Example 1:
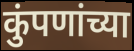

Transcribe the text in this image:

कुंपणांच्या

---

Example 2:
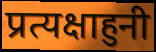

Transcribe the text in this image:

प्रत्यक्षाहुनी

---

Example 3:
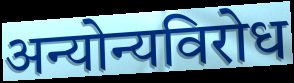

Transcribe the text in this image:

अन्योन्यविरोध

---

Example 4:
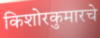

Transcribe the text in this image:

किशोरकुमारचे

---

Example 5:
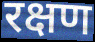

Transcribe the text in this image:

रक्षण